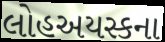
લોહઅયસ્કના